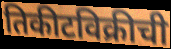
तिकीटविक्रीची